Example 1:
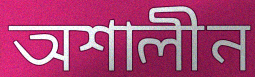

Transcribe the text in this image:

অশালীন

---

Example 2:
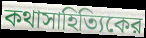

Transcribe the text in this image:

কথাসাহিত্যিকের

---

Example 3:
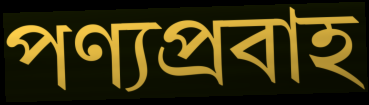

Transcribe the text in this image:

পণ্যপ্রবাহ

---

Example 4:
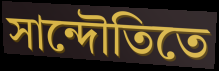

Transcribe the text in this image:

সান্দৌতিতে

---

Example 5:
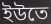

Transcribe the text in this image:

ইউতে